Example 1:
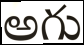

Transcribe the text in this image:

అగు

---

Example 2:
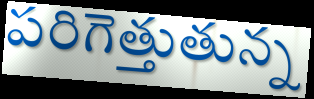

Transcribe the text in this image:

పరిగెత్తుతున్న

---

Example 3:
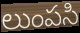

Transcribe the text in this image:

లుంపసి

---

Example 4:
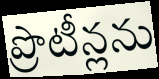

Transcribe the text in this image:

ప్రొటీన్లను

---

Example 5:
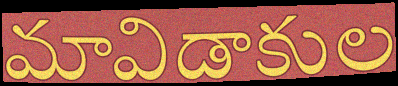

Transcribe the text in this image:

మావిడాకుల